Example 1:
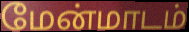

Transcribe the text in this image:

மேன்மாடம்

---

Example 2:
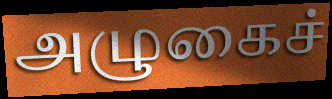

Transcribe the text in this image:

அழுகைச்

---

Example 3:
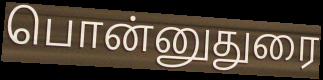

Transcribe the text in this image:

பொன்னுதுரை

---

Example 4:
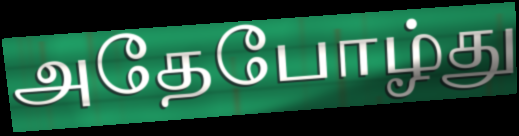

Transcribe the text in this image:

அதேபோழ்து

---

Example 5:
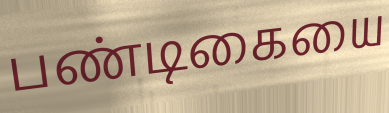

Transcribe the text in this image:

பண்டிகையை